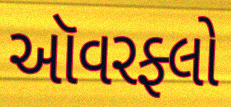
ઑવરફ્લો